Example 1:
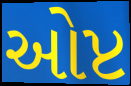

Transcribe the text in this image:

ઓપ્ટ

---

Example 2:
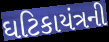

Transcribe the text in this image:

ઘટિકાયંત્રની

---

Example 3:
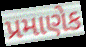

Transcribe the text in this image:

પ્રમાણેક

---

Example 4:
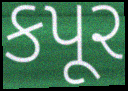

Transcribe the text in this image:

કપૂર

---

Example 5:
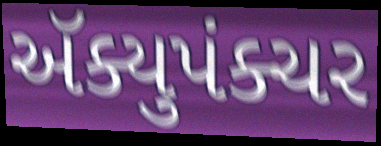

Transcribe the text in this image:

ઍક્યુપંક્ચર